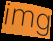
img